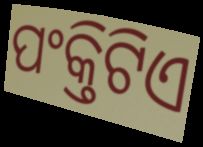
ପଂକ୍ତିଟିଏ